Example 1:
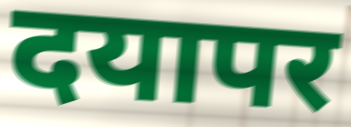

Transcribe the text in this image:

दयापर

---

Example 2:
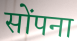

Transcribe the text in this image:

सोंपना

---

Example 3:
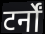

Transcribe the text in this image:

टर्नों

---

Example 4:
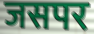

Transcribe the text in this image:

जसपर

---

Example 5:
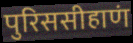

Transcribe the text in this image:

पुरिससीहाणं